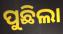
ପୁଛିଲା